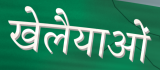
खेलैयाओं